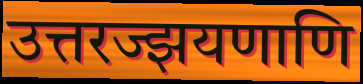
उत्तरज्झयणाणि